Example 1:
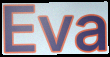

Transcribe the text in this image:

Eva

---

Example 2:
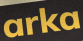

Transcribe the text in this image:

arka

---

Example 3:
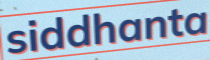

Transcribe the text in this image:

siddhanta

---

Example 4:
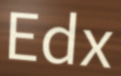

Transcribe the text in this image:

Edx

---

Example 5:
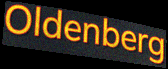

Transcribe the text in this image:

Oldenberg